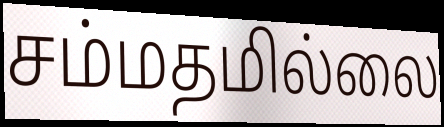
சம்மதமில்லை